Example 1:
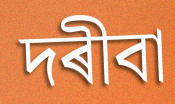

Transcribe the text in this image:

দৰীবা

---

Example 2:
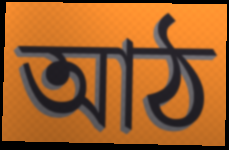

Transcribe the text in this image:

আঠ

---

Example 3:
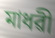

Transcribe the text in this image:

মাধৱী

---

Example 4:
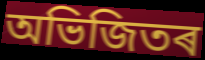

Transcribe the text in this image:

অভিজিতৰ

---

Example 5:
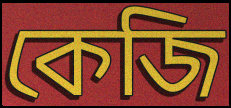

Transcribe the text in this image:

কেজি